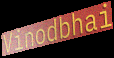
Vinodbhai